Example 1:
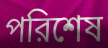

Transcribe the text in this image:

পরিশেষ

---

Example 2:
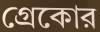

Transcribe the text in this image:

গ্রেকোর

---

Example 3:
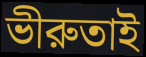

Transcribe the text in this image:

ভীরুতাই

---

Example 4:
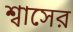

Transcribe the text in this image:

শ্বাসের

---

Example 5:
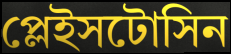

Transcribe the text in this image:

প্লেইসটোসিন